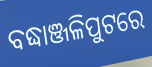
ବଦ୍ଧାଞ୍ଜଳିପୁଟରେ